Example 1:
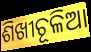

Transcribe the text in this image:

ଶିଖୀଚୂଳିଆ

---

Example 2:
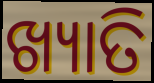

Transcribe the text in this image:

ଖ୍ଯାତି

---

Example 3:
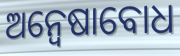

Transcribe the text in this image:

ଅନ୍ୱେଷାବୋଧ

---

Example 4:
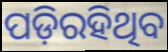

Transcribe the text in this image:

ପଡ଼ିରହିଥିବ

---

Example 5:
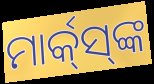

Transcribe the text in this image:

ମାର୍କ୍‌ସ୍‌ଙ୍କ